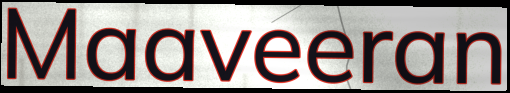
Maaveeran